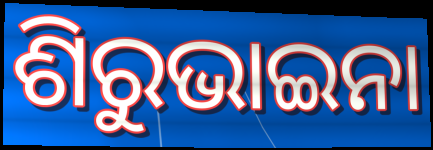
ଶିରୁଭାଇନା